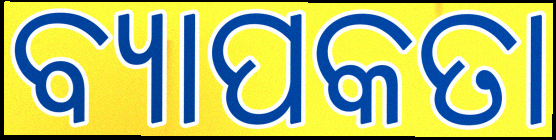
ବ୍ୟାପକତା